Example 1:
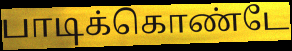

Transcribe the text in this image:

பாடிக்கொண்டே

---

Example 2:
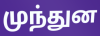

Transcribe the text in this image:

முந்துன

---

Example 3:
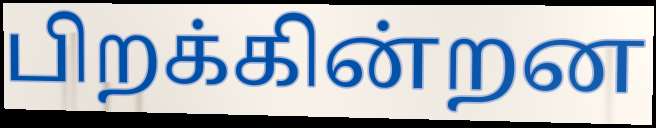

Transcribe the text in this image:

பிறக்கின்றன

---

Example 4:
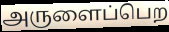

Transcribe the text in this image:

அருளைப்பெற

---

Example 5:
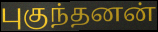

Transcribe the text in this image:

புகுந்தனன்